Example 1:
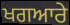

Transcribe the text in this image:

ਖਗਆਰੇ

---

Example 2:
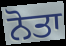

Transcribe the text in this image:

ਨੋਤਾ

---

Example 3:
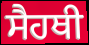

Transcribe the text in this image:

ਸੈਹਥੀ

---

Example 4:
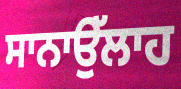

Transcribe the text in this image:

ਸਾਨਾਉੱਲਾਹ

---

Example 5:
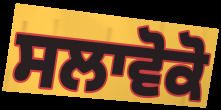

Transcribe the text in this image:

ਸਲਾਵੋਕੋ